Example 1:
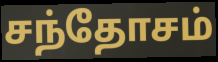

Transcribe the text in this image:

சந்தோசம்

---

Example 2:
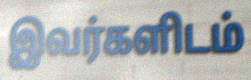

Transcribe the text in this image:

இவர்களிடம்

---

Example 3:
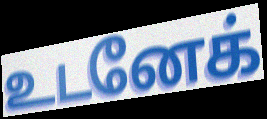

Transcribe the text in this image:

உடனேக்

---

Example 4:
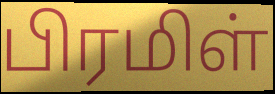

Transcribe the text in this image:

பிரமிள்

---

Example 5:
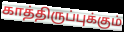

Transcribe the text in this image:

காத்திருப்புக்கும்